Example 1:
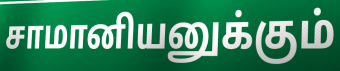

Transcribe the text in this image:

சாமானியனுக்கும்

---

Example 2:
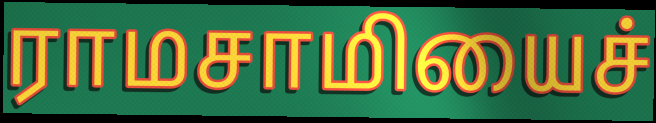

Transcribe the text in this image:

ராமசாமியைச்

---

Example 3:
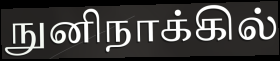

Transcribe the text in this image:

நுனிநாக்கில்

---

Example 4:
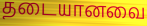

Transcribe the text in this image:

தடையானவை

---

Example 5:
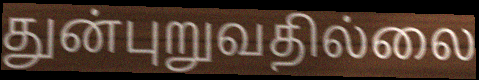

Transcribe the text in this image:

துன்புறுவதில்லை